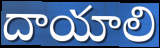
దాయాలి